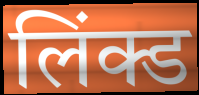
लिंक्ड